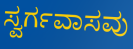
ಸ್ವರ್ಗವಾಸವು